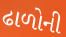
ઢાળોની